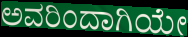
ಅವರಿಂದಾಗಿಯೇ